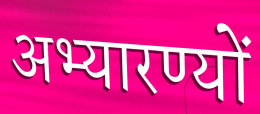
अभ्यारण्यों